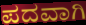
ಪದವಾಗಿ